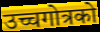
उच्चगोत्रको